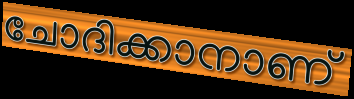
ചോദിക്കാനാണ്